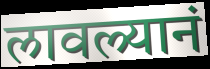
लावल्यानं